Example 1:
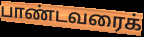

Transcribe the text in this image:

பாண்டவரைக்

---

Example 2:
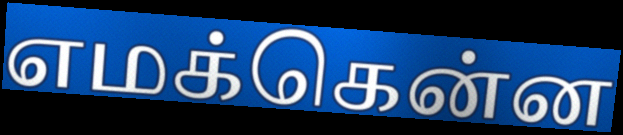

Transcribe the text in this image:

எமக்கென்ன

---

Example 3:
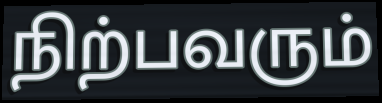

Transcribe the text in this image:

நிற்பவரும்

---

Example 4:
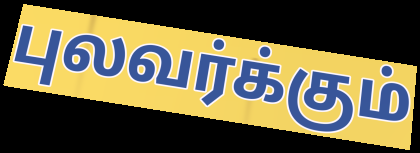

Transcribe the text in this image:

புலவர்க்கும்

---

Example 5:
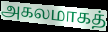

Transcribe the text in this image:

அகலமாகத்